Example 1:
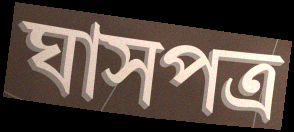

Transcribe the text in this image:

ঘাসপত্র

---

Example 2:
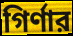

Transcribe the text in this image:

গির্ণার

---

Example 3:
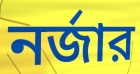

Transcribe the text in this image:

নর্জার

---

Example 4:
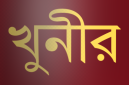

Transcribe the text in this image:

খুনীর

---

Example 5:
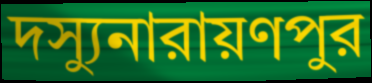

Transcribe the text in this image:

দস্যুনারায়ণপুর